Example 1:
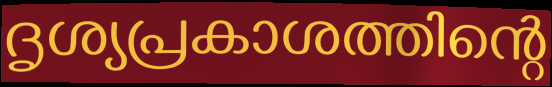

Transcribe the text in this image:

ദൃശ്യപ്രകാശത്തിന്റെ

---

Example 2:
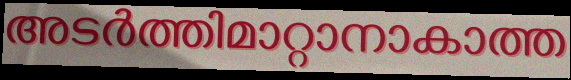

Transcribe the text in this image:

അടർത്തിമാറ്റാനാകാത്ത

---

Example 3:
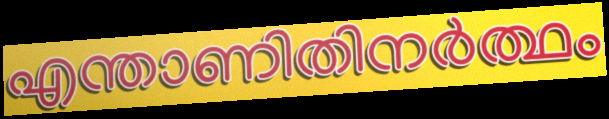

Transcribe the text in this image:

എന്താണിതിനർത്ഥം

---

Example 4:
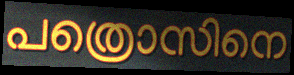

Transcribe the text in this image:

പത്രൊസിനെ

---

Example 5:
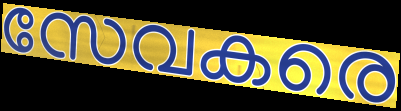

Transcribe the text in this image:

സേവകരെ